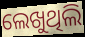
ଲେଖୁଥିଲି